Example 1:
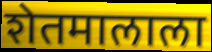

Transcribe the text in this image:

शेतमालाला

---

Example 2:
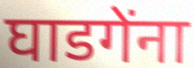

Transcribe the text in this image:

घाडगेंना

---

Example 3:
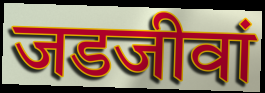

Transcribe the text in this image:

जडजीवां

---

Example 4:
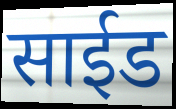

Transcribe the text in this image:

साईड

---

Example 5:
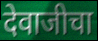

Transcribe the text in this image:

देवाजीचा